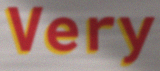
Very